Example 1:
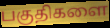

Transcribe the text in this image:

பகுதிகளை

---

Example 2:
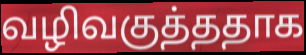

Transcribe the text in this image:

வழிவகுத்ததாக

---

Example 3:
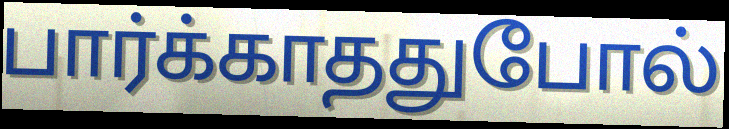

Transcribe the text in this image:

பார்க்காததுபோல்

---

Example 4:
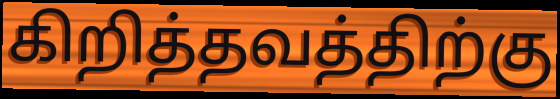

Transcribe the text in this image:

கிறித்தவத்திற்கு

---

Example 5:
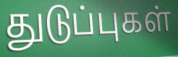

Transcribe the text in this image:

துடுப்புகள்